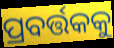
ପ୍ରବର୍ତ୍ତକକୁ